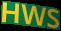
HWS